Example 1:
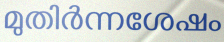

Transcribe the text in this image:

മുതിർന്നശേഷം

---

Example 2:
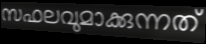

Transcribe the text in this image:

സഫലവുമാക്കുന്നത്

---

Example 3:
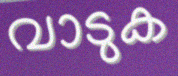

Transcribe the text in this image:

വാടുക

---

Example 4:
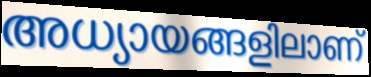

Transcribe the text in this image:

അധ്യായങ്ങളിലാണ്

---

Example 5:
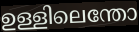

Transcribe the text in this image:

ഉള്ളിലെന്തോ